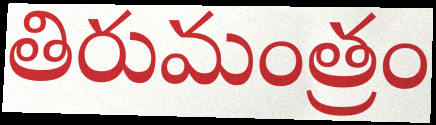
తిరుమంత్రం